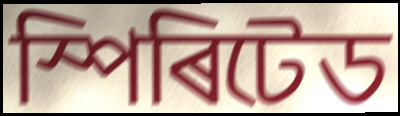
স্পিৰিটেড